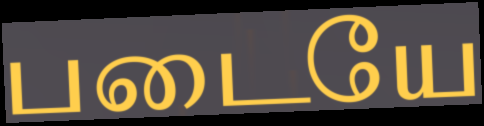
படையே